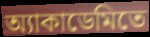
অ্যাকাডেমিতে